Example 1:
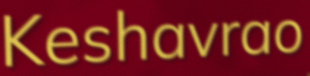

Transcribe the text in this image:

Keshavrao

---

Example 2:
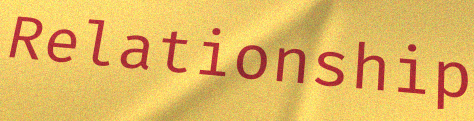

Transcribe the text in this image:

Relationship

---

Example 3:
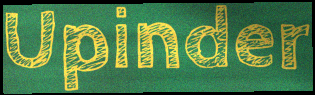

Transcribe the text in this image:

Upinder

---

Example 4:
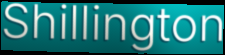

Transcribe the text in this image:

Shillington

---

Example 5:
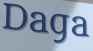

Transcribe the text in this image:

Daga